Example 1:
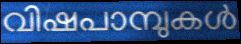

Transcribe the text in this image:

വിഷപാമ്പുകൾ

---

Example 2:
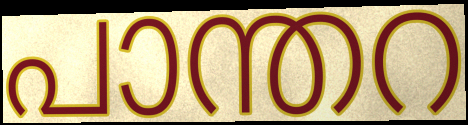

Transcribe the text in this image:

പാന്തറ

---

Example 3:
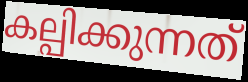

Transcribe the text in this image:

കല്പിക്കുന്നത്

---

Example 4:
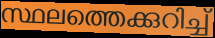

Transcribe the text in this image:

സ്ഥലത്തെക്കുറിച്ച്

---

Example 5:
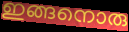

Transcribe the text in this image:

ഇങ്ങനൊരു